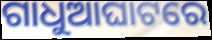
ଗାଧୁଆଘାଟରେ